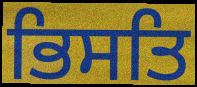
ਭਿਸਤਿ